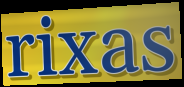
rixas